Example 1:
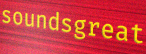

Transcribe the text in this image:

soundsgreat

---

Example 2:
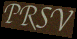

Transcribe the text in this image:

PRSV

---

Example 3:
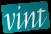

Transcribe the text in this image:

vint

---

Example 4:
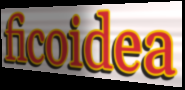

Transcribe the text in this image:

ficoidea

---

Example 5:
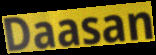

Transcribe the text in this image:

Daasan